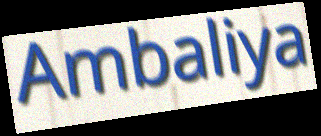
Ambaliya